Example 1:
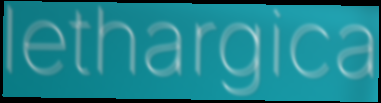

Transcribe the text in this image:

lethargica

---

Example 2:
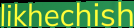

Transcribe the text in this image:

likhechish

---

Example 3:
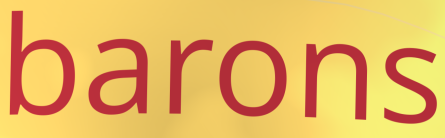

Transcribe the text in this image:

barons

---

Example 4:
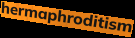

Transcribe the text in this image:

hermaphroditism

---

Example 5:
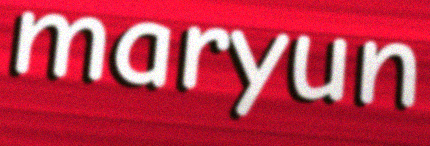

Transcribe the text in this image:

maryun